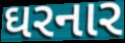
ઘરનાર